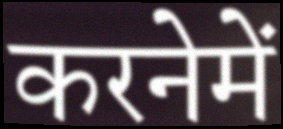
करनेमें